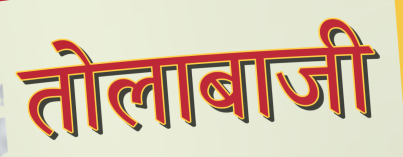
तोलाबाजी